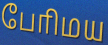
பேரிமய